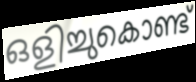
ഒളിച്ചുകൊണ്ട്